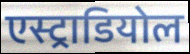
एस्ट्राडियोल